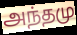
அந்தமு